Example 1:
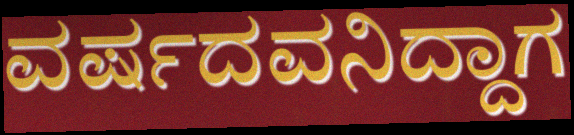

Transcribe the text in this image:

ವರ್ಷದವನಿದ್ದಾಗ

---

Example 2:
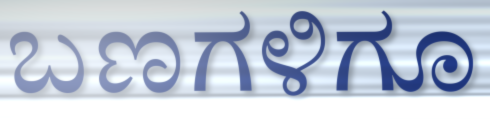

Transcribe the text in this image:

ಬಣಗಳಿಗೂ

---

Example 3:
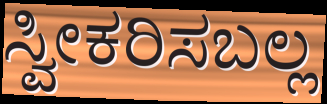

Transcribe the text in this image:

ಸ್ವೀಕರಿಸಬಲ್ಲ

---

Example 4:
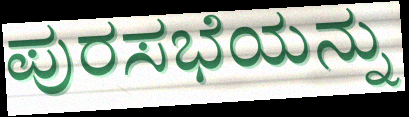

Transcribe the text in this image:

ಪುರಸಭೆಯನ್ನು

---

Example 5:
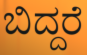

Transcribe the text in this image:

ಬಿದ್ದರೆ